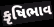
કૃષિભાવ